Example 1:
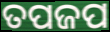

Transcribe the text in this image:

ତପଜପ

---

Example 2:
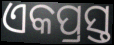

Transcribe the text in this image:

ଏକପ୍ରସ୍ତ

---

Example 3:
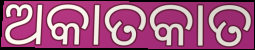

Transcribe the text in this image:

ଅକାତକାତ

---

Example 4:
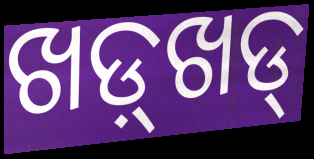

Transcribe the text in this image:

ଖଡ଼୍‌ଖଡ୍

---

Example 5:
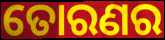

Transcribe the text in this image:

ତୋରଣର